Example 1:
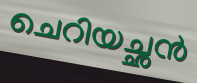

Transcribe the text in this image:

ചെറിയച്ഛൻ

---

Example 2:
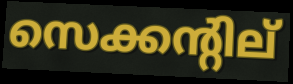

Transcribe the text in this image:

സെക്കന്റില്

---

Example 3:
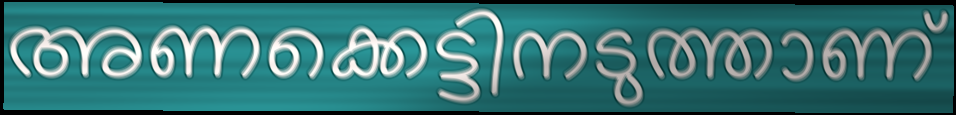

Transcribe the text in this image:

അണക്കെട്ടിനടുത്താണ്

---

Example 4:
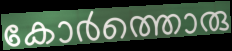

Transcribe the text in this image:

കോർത്തൊരു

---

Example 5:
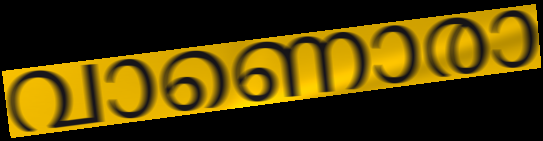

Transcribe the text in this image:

വാണൊരാ